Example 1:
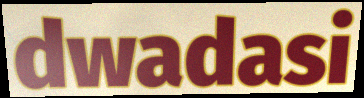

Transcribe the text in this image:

dwadasi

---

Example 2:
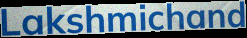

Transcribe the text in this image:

Lakshmichand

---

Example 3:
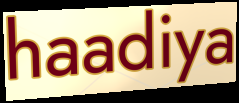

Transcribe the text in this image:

haadiya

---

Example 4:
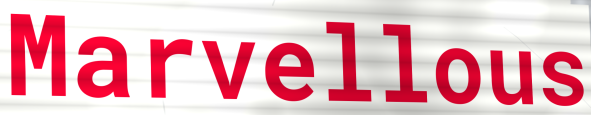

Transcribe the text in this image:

Marvellous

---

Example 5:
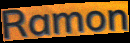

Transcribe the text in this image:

Ramon